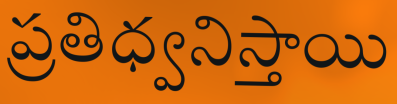
ప్రతిధ్వనిస్తాయి